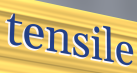
tensile